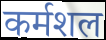
कर्मशल